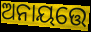
ଅନାୟତ୍ତେ